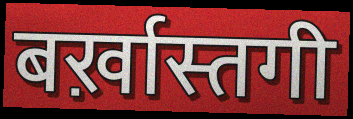
बर्ख़ास्तगी